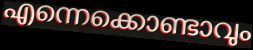
എന്നെക്കൊണ്ടാവും